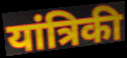
यांत्रिकी